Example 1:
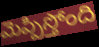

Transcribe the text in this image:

మెప్పిస్తోంది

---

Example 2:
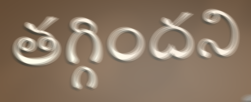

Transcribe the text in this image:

తగ్గిందని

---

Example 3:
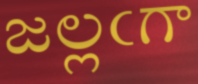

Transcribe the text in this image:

జల్లఁగా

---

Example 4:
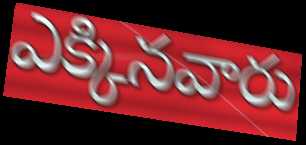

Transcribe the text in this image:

ఎక్కినవారు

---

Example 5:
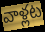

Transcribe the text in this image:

వాళ్లట